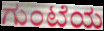
ಗುಂಟೆಯ